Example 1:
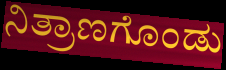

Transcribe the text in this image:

ನಿತ್ರಾಣಗೊಂಡು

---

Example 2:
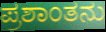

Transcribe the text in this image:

ಪ್ರಶಾಂತನು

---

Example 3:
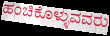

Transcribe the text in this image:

ಹಂಚಿಕೊಳ್ಳುವವರು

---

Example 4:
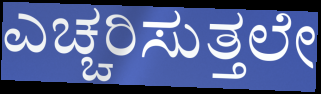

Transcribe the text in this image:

ಎಚ್ಚರಿಸುತ್ತಲೇ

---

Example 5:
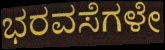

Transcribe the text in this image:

ಭರವಸೆಗಳೇ